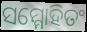
ସମ୍ମୋହିତଂ